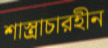
শাস্ত্রাচারহীন